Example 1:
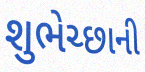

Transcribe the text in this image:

શુભેચ્છાની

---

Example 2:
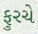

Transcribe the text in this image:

ફુરચે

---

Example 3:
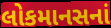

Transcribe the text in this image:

લોકમાનસનાં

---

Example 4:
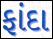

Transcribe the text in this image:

ફાંદા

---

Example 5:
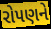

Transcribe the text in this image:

રોપણને